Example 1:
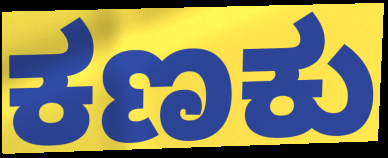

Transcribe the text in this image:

ಕಣಕು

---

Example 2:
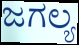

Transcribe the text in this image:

ಜಗಲ್ಯ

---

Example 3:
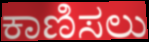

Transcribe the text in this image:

ಕಾಣಿಸಲು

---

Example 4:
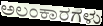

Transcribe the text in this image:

ಅಲಂಕಾರಗಳು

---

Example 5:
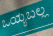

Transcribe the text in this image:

ಒಯ್ಯಬಲ್ಲ